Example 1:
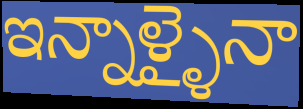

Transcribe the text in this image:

ఇన్నాళ్ళైనా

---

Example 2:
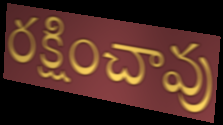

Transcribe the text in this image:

రక్షించావు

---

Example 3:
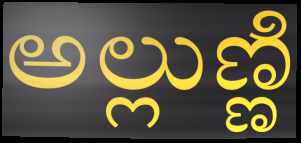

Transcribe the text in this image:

అల్లుణ్ణి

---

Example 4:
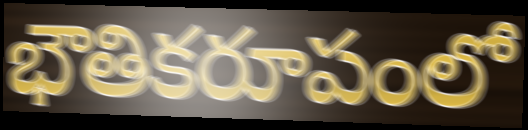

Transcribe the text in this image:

భౌతికరూపంలో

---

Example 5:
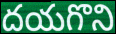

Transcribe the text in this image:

దయగొని